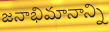
జనాభిమానాన్ని